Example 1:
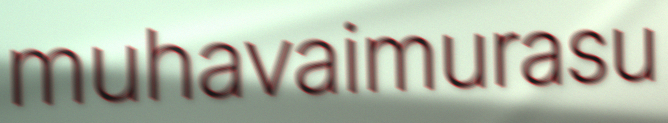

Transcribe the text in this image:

muhavaimurasu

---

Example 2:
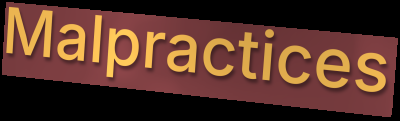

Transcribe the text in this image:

Malpractices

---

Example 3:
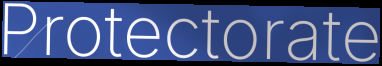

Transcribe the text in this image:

Protectorate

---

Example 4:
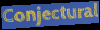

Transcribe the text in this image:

Conjectural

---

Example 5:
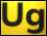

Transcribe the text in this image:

Ug